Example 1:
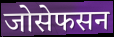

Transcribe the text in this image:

जोसेफसन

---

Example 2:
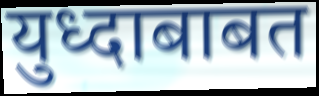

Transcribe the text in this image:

युध्दाबाबत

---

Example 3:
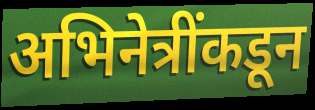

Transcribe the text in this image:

अभिनेत्रींकडून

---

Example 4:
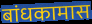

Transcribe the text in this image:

बांधकामास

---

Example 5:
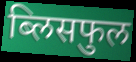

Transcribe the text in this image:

ब्लिसफुल